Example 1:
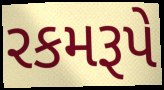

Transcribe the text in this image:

રકમરૂપે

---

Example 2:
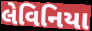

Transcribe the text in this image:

લેવિનિયા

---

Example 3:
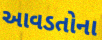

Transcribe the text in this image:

આવડતોના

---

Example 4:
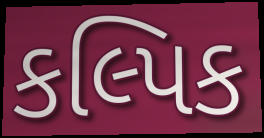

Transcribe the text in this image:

કલ્પિક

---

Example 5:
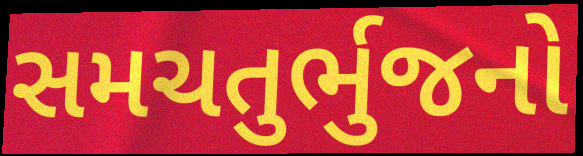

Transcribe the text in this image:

સમચતુર્ભુજનો